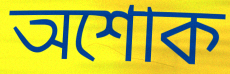
অশোক